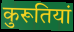
कुरूतियां